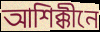
আশিক্কীনে